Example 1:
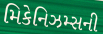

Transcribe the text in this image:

મિકેનિઝમ્સની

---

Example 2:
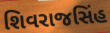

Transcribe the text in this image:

શિવરાજસિંહ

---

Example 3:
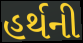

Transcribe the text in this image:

હર્થની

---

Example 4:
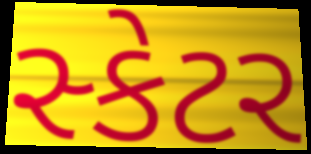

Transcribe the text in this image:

સ્કેટર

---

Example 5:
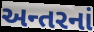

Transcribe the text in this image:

અન્તરનાં